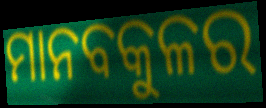
ମାନବକୁଳର